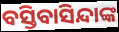
ବସ୍ତିବାସିନ୍ଦାଙ୍କ